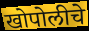
खोपोलीचे